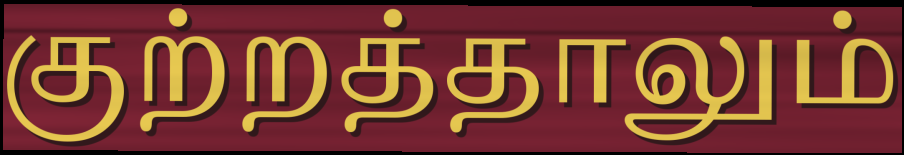
குற்றத்தாலும்